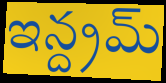
ఇన్ద్రమ్